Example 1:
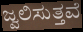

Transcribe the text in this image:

ಜ್ವಲಿಸುತ್ತವೆ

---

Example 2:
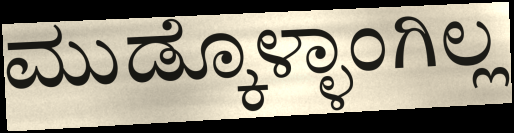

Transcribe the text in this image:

ಮುಡ್ಕೊಳ್ಳಾಂಗಿಲ್ಲ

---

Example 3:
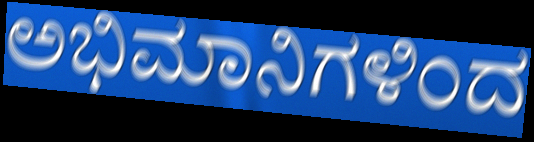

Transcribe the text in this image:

ಅಭಿಮಾನಿಗಳಿಂದ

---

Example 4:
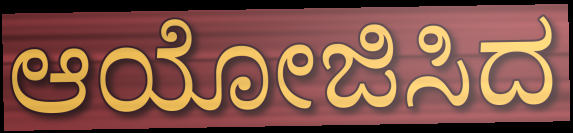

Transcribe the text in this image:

ಆಯೋಜಿಸಿದ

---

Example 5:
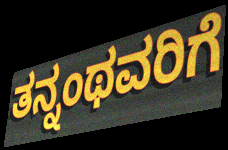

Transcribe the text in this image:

ತನ್ನಂಥವರಿಗೆ